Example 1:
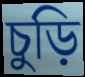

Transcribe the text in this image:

চুড়ি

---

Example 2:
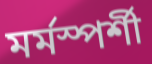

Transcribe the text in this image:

মৰ্মস্পৰ্শী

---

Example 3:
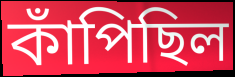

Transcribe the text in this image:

কাঁপিছিল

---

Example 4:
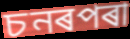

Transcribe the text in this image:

চনৰপৰা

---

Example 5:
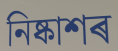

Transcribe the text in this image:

নিষ্কাশৰ